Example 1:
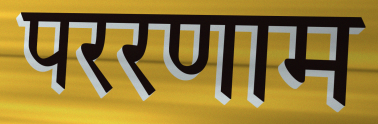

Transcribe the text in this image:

पररणाम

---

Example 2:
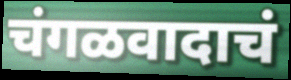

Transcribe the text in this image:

चंगळवादाचं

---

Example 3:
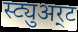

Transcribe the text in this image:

स्ट्युअर्ट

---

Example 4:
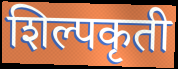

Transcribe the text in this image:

शिल्पकृती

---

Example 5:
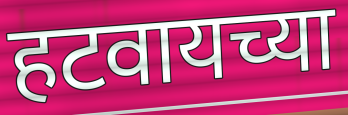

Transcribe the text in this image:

हटवायच्या